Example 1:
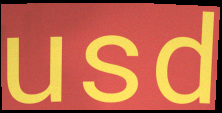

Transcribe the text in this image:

usd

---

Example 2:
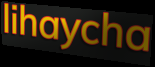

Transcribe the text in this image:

lihaycha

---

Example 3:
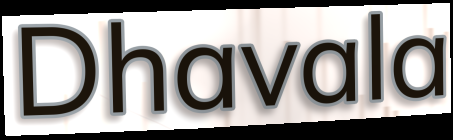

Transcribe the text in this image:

Dhavala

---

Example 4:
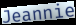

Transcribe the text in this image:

Jeannie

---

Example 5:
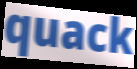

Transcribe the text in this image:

quack